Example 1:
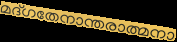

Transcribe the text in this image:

മദ്ഗതേനാന്തരാത്മനാ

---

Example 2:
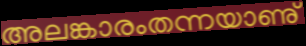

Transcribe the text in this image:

അലങ്കാരംതന്നയാണു്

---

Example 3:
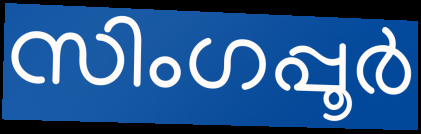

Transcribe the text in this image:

സിംഗപ്പൂർ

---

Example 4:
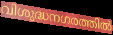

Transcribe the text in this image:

വിശുദ്ധനഗരത്തിൽ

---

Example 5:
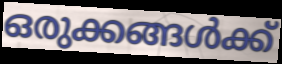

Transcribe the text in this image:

ഒരുക്കങ്ങൾക്ക്